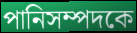
পানিসম্পদকে